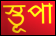
স্তূপা